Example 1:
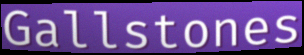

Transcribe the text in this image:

Gallstones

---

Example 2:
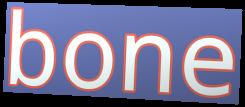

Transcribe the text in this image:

bone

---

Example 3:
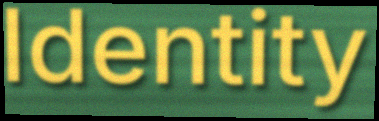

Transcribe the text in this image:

Identity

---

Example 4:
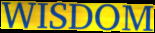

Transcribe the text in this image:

WISDOM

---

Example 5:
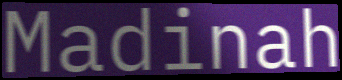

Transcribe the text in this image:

Madinah